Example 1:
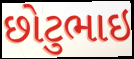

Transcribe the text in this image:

છોટુભાઇ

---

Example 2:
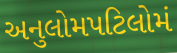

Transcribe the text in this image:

અનુલોમપટિલોમં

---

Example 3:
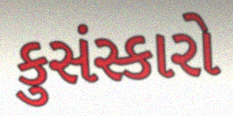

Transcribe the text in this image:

કુસંસ્કારો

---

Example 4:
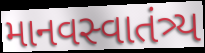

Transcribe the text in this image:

માનવસ્વાતંત્ર્ય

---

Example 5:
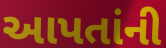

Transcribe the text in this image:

આપતાંની